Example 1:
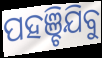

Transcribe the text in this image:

ପହଞ୍ଚିଯିବୁ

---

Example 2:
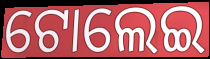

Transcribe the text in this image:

ଟୋଲେଇ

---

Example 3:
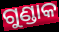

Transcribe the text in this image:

ଗୁଣ୍ଡାକ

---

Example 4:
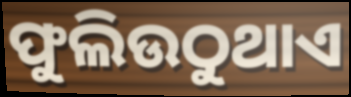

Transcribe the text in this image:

ଫୁଲିଉଠୁଥାଏ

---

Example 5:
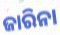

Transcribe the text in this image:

ଜାରିନା